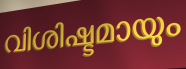
വിശിഷ്ടമായും